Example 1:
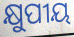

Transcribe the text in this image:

କ୍ଷୁପୀୟ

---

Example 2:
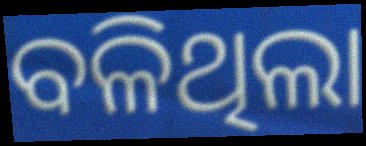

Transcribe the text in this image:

ବଳିଥିଲା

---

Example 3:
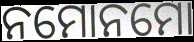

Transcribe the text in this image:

ନମୋନମୋ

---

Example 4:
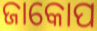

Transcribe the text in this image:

ଜାକୋପ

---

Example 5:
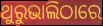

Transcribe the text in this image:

ଥୁରୁଭାଲିଠାରେ